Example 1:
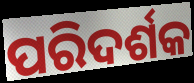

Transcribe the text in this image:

ପରିଦର୍ଶକ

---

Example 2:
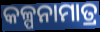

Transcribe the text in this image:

କଳ୍ପନାମାତ୍ର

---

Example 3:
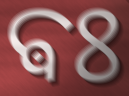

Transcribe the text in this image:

ଵଃ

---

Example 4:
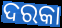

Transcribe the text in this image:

ଦରକା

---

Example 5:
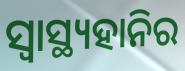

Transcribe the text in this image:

ସ୍ଵାସ୍ଥ୍ୟହାନିର